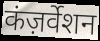
कंज़र्वेशन